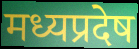
मध्यप्रदेष